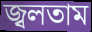
জ্বলতাম